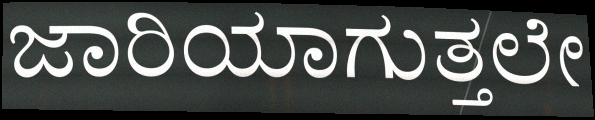
ಜಾರಿಯಾಗುತ್ತಲೇ